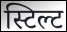
स्टिल्ट